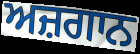
ਅਜ਼ਗਾਨ